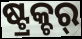
ଷ୍ଟ୍ରକ୍ଚର୍